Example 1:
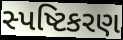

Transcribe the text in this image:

સ્પષ્ટિકરણ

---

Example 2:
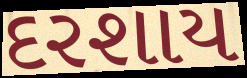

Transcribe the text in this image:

દરશાય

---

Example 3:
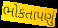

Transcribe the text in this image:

ભોકતાપણું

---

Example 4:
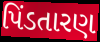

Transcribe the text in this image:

પિંડતારણ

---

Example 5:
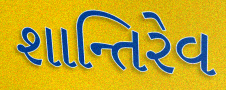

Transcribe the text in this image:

શાન્તિરેવ